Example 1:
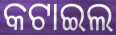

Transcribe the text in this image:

କଟାଇଲ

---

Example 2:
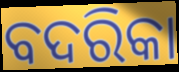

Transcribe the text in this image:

ବଦରିକା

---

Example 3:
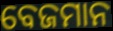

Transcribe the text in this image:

ବେଜମାନ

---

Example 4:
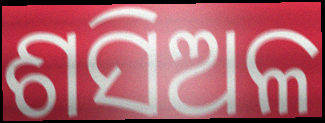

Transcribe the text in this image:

ଶସିଅଳ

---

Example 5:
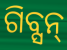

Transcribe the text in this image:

ଗିବ୍ସନ୍